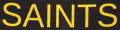
SAINTS